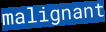
malignant